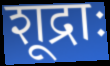
शूद्राः